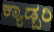
ಕ್ಯಾಡ್ಬರಿ